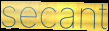
secant